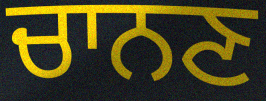
ਚਾਨਣ